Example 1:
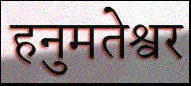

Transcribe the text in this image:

हनुमतेश्वर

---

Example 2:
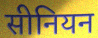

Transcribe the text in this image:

सीनियन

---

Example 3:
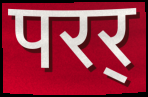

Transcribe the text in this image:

परर्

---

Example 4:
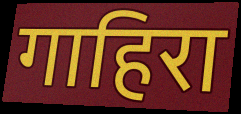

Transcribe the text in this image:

गाहिरा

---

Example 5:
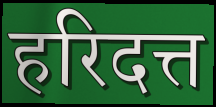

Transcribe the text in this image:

हरिदत्त